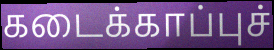
கடைக்காப்புச்